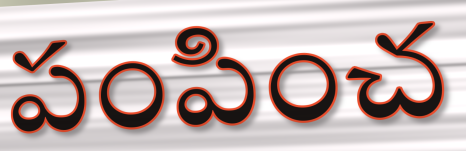
పంపించ